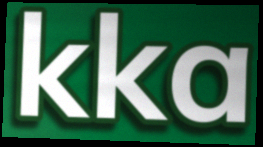
kka